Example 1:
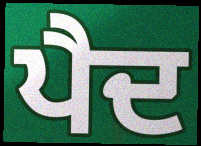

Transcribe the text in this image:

ਪੈਦ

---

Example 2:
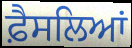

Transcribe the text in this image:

ਫ਼ੈਸਲਿਆਂ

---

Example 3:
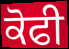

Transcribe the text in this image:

ਕੋਫੀ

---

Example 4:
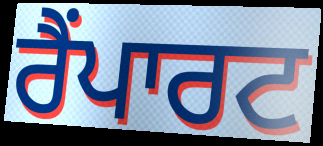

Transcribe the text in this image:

ਰੈਂਪਾਰਟ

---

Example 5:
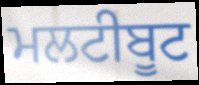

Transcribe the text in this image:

ਮਲਟੀਬੂਟ